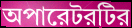
অপারেটরটির